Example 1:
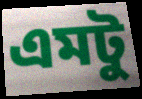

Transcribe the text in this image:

এমটু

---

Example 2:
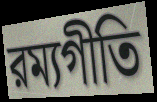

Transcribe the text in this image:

রম্যগীতি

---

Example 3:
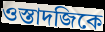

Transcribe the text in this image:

ওস্তাদজিকে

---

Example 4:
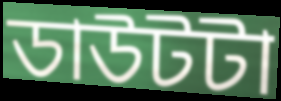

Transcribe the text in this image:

ডাউটটা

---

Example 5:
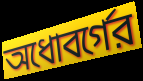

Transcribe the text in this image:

অধোবর্গের